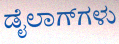
ಡೈಲಾಗ್‌ಗಳು